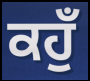
ਕਹੁਁ